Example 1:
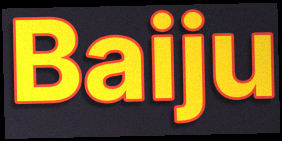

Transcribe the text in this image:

Baiju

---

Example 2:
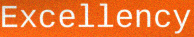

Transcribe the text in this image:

Excellency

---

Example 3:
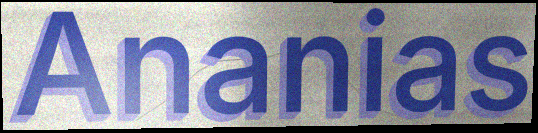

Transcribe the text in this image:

Ananias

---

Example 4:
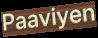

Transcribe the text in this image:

Paaviyen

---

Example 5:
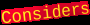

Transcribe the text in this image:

Considers